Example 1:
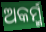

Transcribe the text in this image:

ଅକର୍ମ୍ମ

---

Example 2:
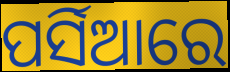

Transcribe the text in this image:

ପର୍ସିଆରେ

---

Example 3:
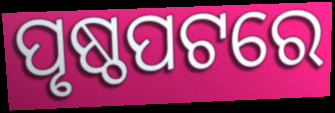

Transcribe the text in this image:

ପୃଷ୍ଠପଟରେ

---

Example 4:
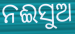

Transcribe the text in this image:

ନଈସୁଅ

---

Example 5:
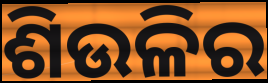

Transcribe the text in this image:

ଶିଉଳିର